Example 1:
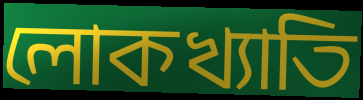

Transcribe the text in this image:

লোকখ্যাতি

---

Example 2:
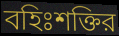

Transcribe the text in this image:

বহিঃশক্তির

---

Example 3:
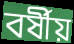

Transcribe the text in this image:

বর্ষীয়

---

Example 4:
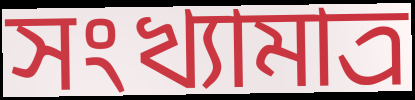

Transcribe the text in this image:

সংখ্যামাত্র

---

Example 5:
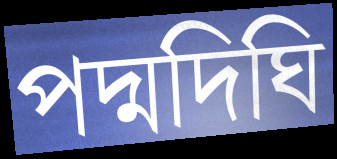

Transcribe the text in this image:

পদ্মদিঘি